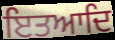
ਇਤਆਦਿ